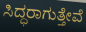
ಸಿದ್ಧರಾಗುತ್ತೇವೆ